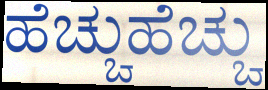
ಹೆಚ್ಚುಹೆಚ್ಚು